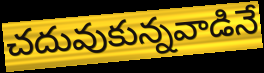
చదువుకున్నవాడినే